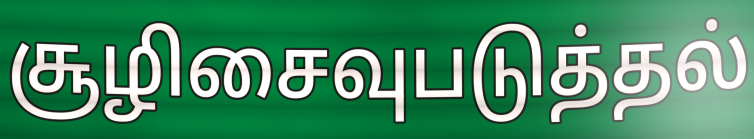
சூழிசைவுபடுத்தல்